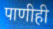
पाणीही